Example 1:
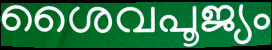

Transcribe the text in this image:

ശൈവപൂജ്യം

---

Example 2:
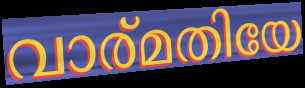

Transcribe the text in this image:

വാര്മതിയേ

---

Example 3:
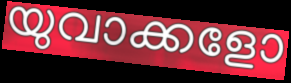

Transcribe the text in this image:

യുവാക്കളോ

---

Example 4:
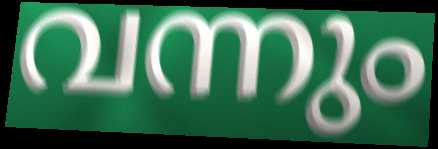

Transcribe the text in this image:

വന്നും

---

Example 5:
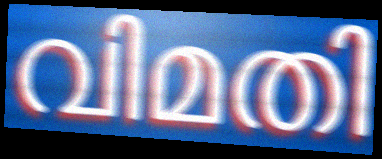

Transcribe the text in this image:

വിമതി